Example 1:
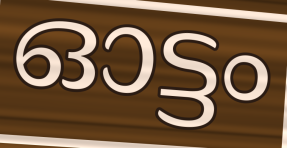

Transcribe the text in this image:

ഓട്ടം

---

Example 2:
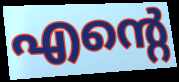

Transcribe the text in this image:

എന്റെ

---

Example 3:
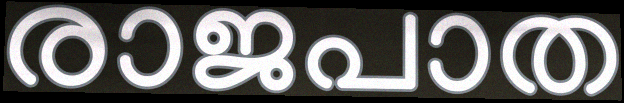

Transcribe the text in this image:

രാജപാത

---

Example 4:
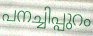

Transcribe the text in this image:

പനച്ചിപ്പുറം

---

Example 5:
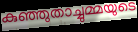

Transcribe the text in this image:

കുഞ്ഞുതാച്ചുമ്മയുടെ